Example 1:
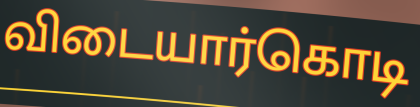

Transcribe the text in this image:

விடையார்கொடி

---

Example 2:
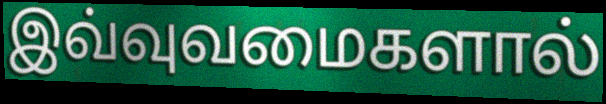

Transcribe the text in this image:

இவ்வுவமைகளால்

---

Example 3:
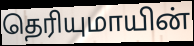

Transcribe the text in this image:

தெரியுமாயின்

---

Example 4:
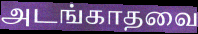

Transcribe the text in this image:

அடங்காதவை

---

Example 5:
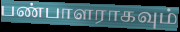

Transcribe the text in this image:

பண்பாளராகவும்